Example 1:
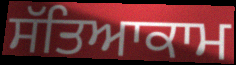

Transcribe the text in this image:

ਸੱਤਿਆਕਾਮ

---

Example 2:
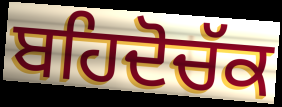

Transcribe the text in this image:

ਬਹਿਦੋਚੱਕ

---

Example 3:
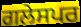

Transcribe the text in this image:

ਗਲੇਸਪਰ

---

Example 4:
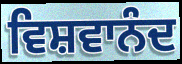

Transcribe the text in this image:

ਵਿਸ਼ਵਾਨੰਦ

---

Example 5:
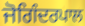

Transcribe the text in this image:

ਜੋਗਿੰਦਰਪਾਲ